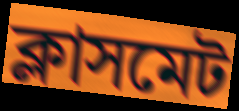
ক্লাসমেট